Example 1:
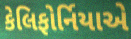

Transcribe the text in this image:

કેલિફોર્નિયાએ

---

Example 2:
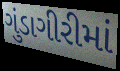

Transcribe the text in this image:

ગુંડાગીરીમાં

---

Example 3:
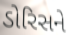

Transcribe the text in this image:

ડોરિસને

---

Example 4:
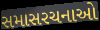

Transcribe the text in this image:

સમાસરચનાઓ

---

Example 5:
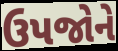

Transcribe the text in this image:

ઉપજોને